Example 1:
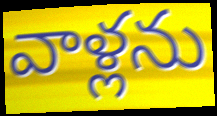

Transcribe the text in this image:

వాళ్లను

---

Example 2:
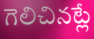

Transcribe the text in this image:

గెలిచినట్లే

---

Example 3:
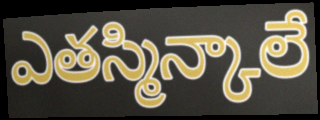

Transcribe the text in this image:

ఎతస్మిన్కాలే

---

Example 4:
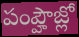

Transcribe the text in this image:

పంప్హౌజ్లో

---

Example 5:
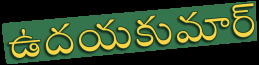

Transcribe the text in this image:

ఉదయకుమార్